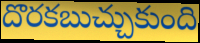
దొరకబుచ్చుకుంది